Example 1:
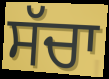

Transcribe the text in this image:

ਸੱਚਾ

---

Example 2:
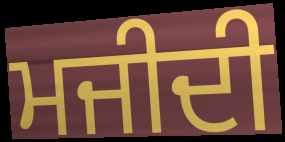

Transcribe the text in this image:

ਮਜੀਦੀ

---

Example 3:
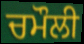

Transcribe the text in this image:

ਚਮੌਲੀ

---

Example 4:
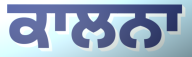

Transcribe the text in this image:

ਕਾਲਨਾ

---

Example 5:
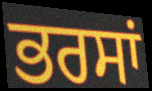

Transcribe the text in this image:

ਭਰਸਾਂ